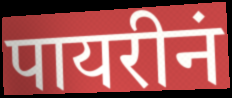
पायरीनं